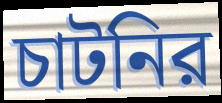
চাটনির